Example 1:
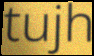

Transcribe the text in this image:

tujh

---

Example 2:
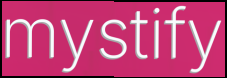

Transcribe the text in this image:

mystify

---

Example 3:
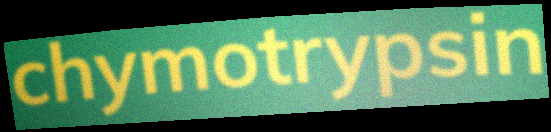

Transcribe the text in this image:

chymotrypsin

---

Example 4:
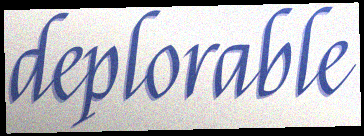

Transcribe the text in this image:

deplorable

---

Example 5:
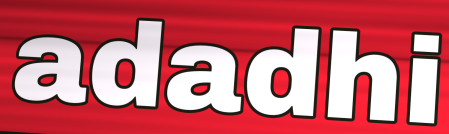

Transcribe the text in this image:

adadhi